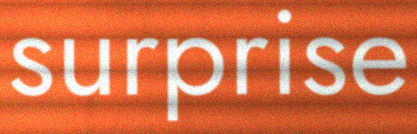
surprise